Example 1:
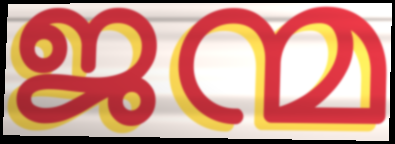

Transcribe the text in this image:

ജന്മ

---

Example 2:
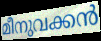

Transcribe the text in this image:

മീനുവക്കൻ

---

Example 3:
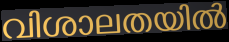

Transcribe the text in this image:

വിശാലതയിൽ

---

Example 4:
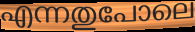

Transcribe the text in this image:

എന്നതുപോലെ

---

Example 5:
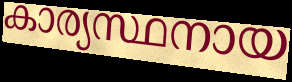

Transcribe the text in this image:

കാര്യസ്ഥനായ